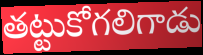
తట్టుకోగలిగాడు